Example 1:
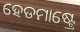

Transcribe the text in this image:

ହେଡମାଷ୍ଟ୍ରେ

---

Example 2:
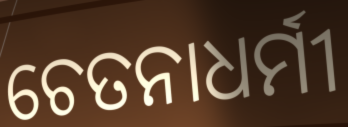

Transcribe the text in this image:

ଚେତନାଧର୍ମୀ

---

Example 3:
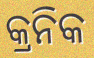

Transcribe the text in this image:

କ୍ରନିକ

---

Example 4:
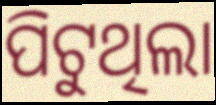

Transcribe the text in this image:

ପିଟୁଥିଲା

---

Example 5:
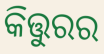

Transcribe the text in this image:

କିତ୍ତୁରର